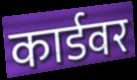
कार्डवर